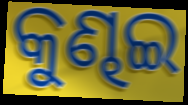
କୁଣ୍ଢଇ